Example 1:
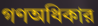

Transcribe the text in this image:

গণঅধিকার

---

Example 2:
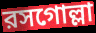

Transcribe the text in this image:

রসগোল্লা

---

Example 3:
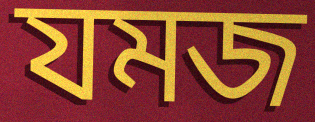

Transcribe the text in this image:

যমজ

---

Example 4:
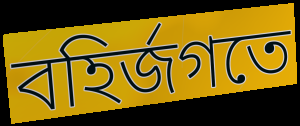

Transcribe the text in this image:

বহির্জগতে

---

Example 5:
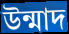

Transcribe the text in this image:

উন্মাদ